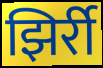
झिर्री